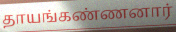
தாயங்கண்ணனார்